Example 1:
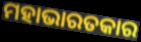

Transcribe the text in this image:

ମହାଭାରତକାର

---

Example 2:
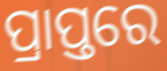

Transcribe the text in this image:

ପ୍ରାପ୍ତରେ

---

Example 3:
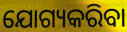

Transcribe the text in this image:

ଯୋଗ୍ୟକରିବା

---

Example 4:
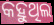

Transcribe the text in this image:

କହୁଥିଲ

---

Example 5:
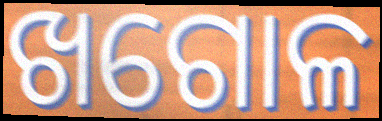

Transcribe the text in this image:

ଖଗୋଳ